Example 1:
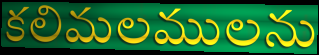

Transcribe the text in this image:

కలిమలములను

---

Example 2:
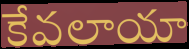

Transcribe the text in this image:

కేవలాయా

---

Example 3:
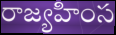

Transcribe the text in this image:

రాజ్యహింస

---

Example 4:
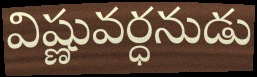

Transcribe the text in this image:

విష్ణువర్ధనుడు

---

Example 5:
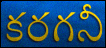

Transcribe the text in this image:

కరగనీ